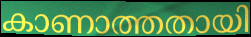
കാണാത്തതായി